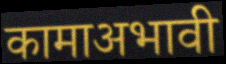
कामाअभावी